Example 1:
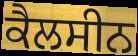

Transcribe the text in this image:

ਕੈਲਸੀਨ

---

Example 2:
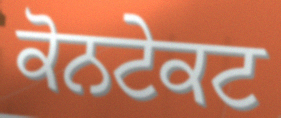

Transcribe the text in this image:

ਕੋਨਟੇਕਟ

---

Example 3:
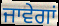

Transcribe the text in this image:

ਜਾਵੇਗਾਂ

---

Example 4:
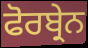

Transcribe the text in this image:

ਫੋਰਬ੍ਰੇਨ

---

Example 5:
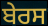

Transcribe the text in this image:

ਬੇਰਸ